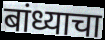
बांध्याचा